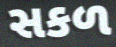
સકળ